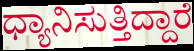
ಧ್ಯಾನಿಸುತ್ತಿದ್ದಾರೆ